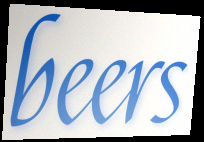
beers